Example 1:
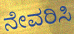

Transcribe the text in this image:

ನೇವರಿಸಿ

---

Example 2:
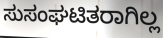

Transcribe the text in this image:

ಸುಸಂಘಟಿತರಾಗಿಲ್ಲ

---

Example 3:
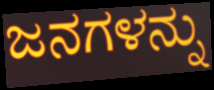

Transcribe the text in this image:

ಜನಗಳನ್ನು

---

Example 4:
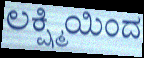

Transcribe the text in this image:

ಲಕ್ಷ್ಮಿಯಿಂದ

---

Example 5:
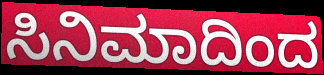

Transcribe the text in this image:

ಸಿನಿಮಾದಿಂದ